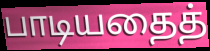
பாடியதைத்